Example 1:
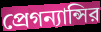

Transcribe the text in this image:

প্রেগন্যান্সির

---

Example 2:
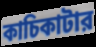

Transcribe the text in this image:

কাচিকাটার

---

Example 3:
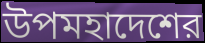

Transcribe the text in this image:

উপমহাদেশের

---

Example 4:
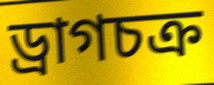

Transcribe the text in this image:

ড্রাগচক্র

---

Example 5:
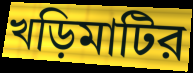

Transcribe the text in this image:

খড়িমাটির